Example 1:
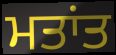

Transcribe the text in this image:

ਮਤਾਂਤ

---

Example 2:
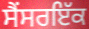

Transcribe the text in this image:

ਸੈਂਸਰਇੱਕ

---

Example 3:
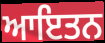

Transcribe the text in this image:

ਆਇਤਨ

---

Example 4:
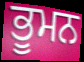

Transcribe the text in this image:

ਭੂਮਨ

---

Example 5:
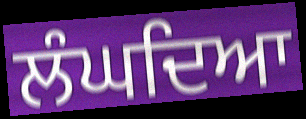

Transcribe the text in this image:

ਲੰਘਦਿਆ